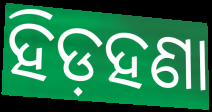
ହିଡ଼ହଣା